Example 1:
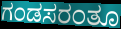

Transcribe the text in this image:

ಗಂಡಸರಂತೂ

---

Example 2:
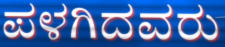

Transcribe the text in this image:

ಪಳಗಿದವರು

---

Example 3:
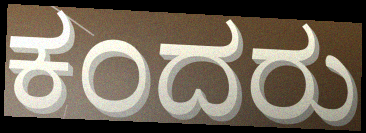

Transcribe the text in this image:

ಕಂದರು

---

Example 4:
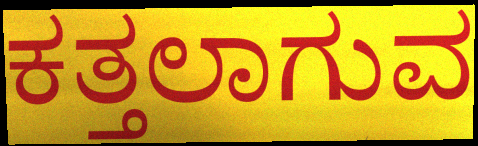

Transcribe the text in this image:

ಕತ್ತಲಾಗುವ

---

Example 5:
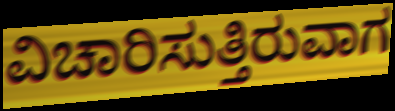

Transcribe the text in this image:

ವಿಚಾರಿಸುತ್ತಿರುವಾಗ